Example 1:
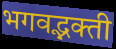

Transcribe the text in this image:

भगवद्भक्ती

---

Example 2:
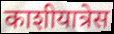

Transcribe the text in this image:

काशीयात्रेस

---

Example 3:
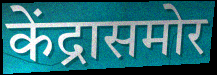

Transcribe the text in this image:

केंद्रासमोर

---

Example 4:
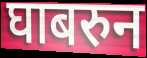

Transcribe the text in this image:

घाबरुन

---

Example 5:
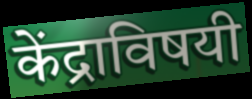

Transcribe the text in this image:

केंद्राविषयी